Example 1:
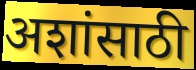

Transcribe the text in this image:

अशांसाठी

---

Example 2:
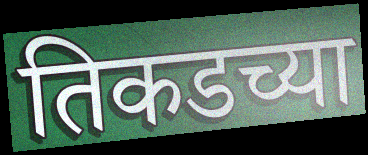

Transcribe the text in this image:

तिकडच्या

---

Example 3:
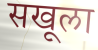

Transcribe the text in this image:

सखूला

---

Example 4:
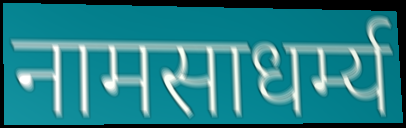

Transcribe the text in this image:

नामसाधर्म्य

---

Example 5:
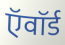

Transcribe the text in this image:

ऍवॉर्ड